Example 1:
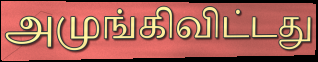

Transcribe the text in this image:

அமுங்கிவிட்டது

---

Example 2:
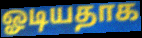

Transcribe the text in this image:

ஓடியதாக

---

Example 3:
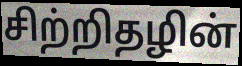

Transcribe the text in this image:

சிற்றிதழின்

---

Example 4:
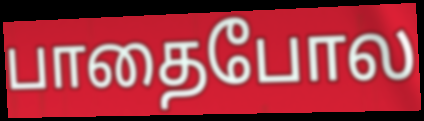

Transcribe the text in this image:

பாதைபோல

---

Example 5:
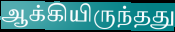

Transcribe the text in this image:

ஆக்கியிருந்தது